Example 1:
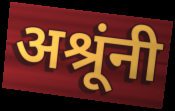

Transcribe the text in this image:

अश्रूंनी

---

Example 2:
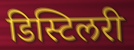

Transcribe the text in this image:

डिस्टिलरी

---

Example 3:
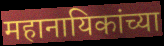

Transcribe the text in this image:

महानायिकांच्या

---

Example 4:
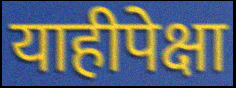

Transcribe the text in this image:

याहीपेक्षा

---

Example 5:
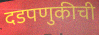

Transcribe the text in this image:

दडपणुकीची